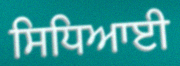
ਸਿਧਿਆਈ